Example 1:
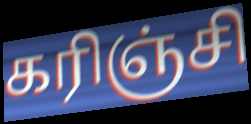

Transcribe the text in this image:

கரிஞ்சி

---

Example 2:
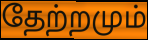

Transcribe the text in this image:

தேற்றமும்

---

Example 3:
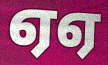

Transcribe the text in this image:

ஏஏ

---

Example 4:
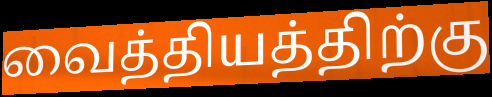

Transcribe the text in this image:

வைத்தியத்திற்கு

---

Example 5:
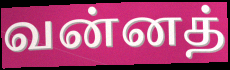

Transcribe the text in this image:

வன்னத்